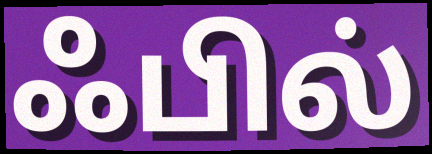
ஃபில்